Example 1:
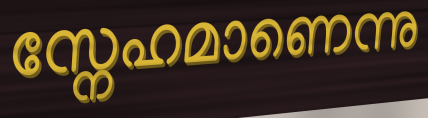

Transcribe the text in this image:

സ്നേഹമാണെന്നു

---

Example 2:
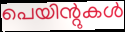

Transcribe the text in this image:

പെയിന്റുകൾ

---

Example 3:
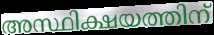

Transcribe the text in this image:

അസ്ഥിക്ഷയത്തിന്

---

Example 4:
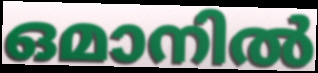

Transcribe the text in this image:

ഒമാനിൽ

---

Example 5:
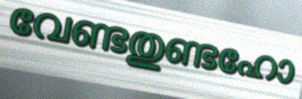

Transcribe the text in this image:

വേണ്ടതുണ്ടഹോ